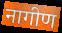
नागीण